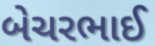
બેચરભાઈ